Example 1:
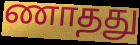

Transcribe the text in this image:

ணாதது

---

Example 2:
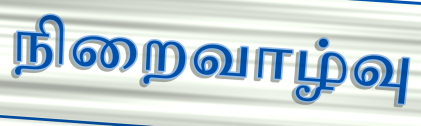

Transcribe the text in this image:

நிறைவாழ்வு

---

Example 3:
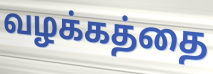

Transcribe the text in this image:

வழக்கத்தை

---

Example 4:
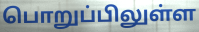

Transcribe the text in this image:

பொறுப்பிலுள்ள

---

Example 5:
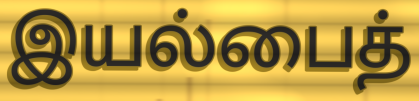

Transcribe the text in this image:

இயல்பைத்